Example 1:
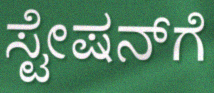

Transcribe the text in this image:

ಸ್ಟೇಷನ್‍ಗೆ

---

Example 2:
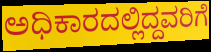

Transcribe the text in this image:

ಅಧಿಕಾರದಲ್ಲಿದ್ದವರಿಗೆ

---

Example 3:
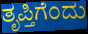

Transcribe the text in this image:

ತೃಪ್ತಿಗೆಂದು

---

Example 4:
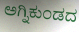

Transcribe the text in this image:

ಅಗ್ನಿಕುಂಡದ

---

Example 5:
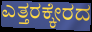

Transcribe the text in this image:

ಎತ್ತರಕ್ಕೇರದ